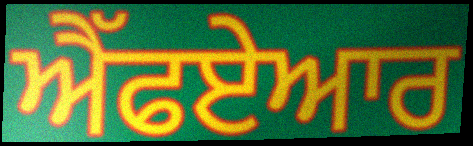
ਐੱਫਏਆਰ